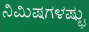
ನಿಮಿಷಗಳಷ್ಟು